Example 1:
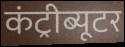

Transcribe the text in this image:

कंट्रीब्यूटर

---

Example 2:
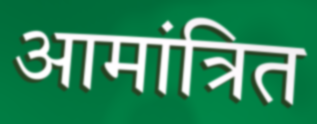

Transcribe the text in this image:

आमांत्रित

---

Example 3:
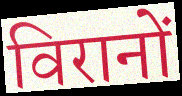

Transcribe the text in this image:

विरानों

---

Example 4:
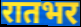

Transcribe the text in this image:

रातभर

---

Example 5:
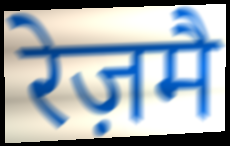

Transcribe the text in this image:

रेज़मै